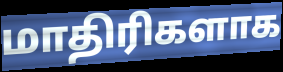
மாதிரிகளாக